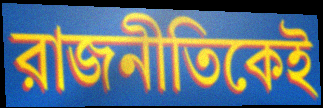
রাজনীতিকেই